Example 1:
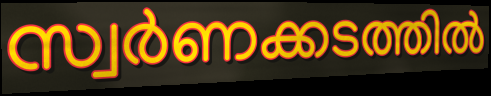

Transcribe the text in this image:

സ്വർണക്കടത്തിൽ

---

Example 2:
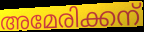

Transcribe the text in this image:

അമേരിക്കന്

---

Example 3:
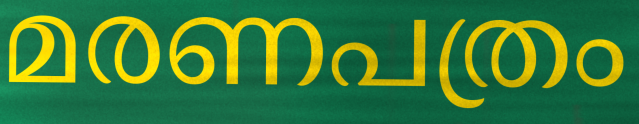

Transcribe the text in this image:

മരണപത്രം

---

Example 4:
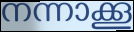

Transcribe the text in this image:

നന്നാക്കൂ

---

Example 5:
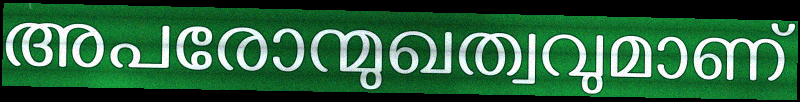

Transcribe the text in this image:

അപരോന്മുഖത്വവുമാണ്